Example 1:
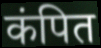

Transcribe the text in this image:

कंपित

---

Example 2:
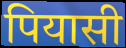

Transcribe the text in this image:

पियासी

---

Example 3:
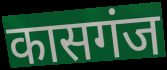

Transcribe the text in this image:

कासगंज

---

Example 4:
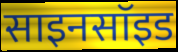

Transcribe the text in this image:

साइनसॉइड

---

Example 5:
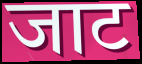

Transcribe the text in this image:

जाट